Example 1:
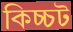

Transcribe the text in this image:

কিচ্চট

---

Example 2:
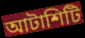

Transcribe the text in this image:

আটাশিটি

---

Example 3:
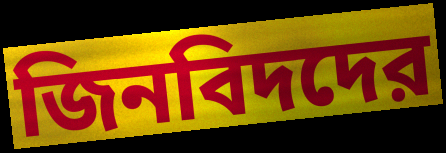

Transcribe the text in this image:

জিনবিদদের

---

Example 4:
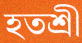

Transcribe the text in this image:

হতশ্রী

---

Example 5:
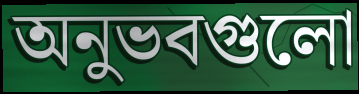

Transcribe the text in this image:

অনুভবগুলো